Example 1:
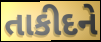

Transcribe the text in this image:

તાકીદને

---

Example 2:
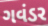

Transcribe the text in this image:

ગવંડર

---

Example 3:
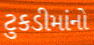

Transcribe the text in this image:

ટુકડીમાંનો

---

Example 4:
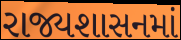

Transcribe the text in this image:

રાજ્યશાસનમાં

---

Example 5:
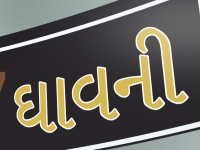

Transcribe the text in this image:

ઘાવની